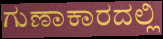
ಗುಣಾಕಾರದಲ್ಲಿ